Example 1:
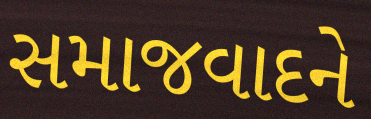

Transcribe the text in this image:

સમાજવાદને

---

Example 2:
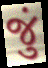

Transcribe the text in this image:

જું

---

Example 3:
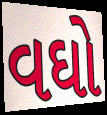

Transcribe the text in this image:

વઘો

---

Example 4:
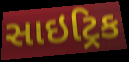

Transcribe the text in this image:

સાઇટ્રિક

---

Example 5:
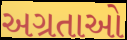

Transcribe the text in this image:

અગ્રતાઓ